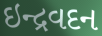
ઇન્દ્રવદન